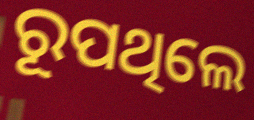
ରୂପଥିଲେ